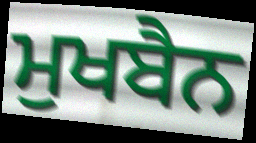
ਮੁਖਬੈਨ